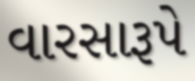
વારસારૂપે